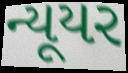
ન્યૂયર